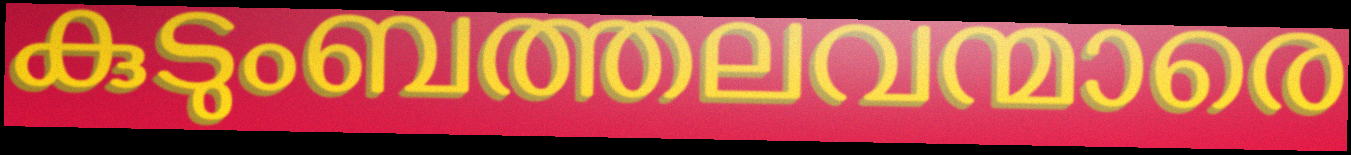
കുടുംബത്തലവന്മാരെ